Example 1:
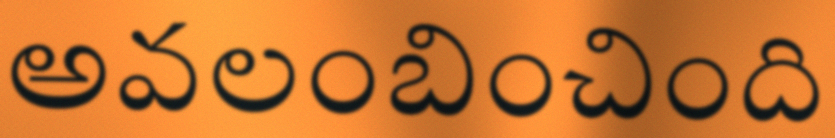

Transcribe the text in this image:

అవలంబించింది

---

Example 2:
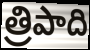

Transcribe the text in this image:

త్రిపాది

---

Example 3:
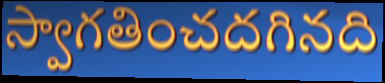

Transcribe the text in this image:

స్వాగతించదగినది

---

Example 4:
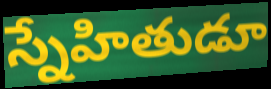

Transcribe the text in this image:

స్నేహితుడూ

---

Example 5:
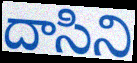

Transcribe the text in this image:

దాసిని